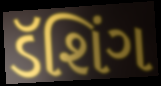
ડૅશિંગ